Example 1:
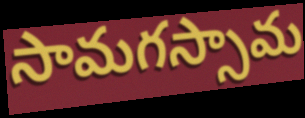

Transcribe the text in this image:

సామగస్సామ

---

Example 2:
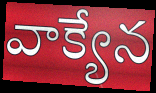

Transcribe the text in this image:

వాక్యేన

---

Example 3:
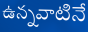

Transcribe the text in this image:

ఉన్నవాటినే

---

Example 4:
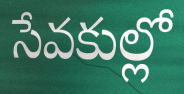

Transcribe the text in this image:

సేవకుల్లో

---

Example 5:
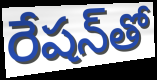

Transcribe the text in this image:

రేషన్‌తో